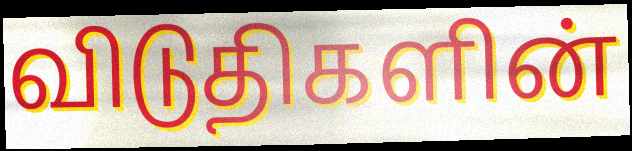
விடுதிகளின்